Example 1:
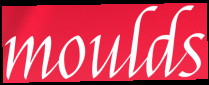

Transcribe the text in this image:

moulds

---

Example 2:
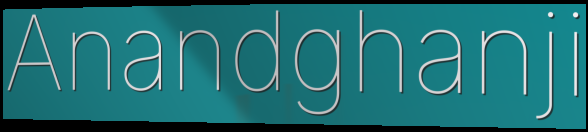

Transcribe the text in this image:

Anandghanji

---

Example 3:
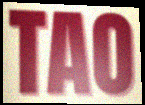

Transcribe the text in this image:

TAO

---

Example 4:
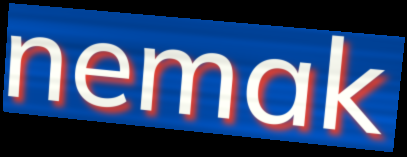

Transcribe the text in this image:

nemak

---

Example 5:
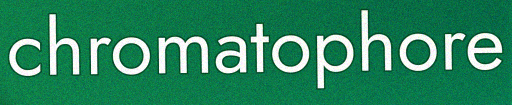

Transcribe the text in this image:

chromatophore